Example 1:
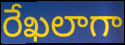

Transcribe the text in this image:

రేఖలాగా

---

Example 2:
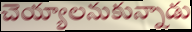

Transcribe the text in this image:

చెయ్యాలనుకున్నాడు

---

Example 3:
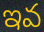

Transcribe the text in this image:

ఇవ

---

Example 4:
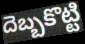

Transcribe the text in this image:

దెబ్బకొట్టి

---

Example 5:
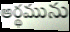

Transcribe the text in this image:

అర్థమును